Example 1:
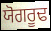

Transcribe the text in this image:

ਯੋਗਰੂਢ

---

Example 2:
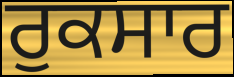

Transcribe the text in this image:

ਰੁਕਸਾਰ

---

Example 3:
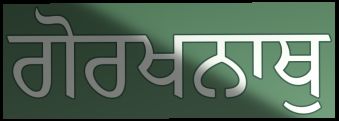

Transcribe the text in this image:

ਗੋਰਖਨਾਥੁ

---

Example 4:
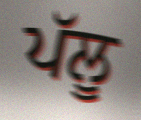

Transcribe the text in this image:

ਪੱਲੂ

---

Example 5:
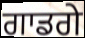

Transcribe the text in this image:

ਗਾਡਗੇ